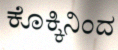
ಕೊಕ್ಕಿನಿಂದ